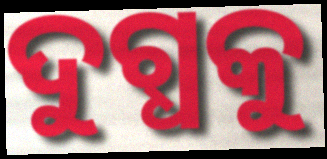
ଦୁଗ୍ଧକୁ